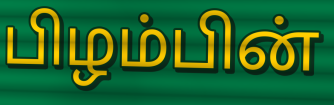
பிழம்பின்